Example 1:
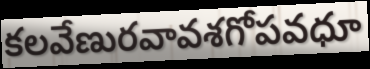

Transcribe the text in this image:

కలవేణురవావశగోపవధూ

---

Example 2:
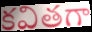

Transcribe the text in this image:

కవితగా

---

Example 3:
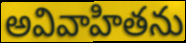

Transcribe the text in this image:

అవివాహితను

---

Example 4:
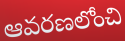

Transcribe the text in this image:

ఆవరణలోంచి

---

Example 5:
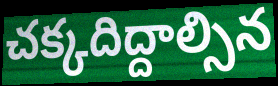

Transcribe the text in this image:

చక్కదిద్దాల్సిన